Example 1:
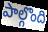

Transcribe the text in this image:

పాల్గొంది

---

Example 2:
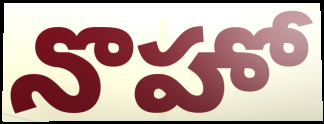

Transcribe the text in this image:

నొహో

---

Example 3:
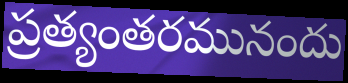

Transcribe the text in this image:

ప్రత్యంతరమునందు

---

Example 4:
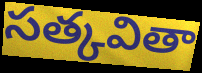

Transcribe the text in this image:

సత్కవితా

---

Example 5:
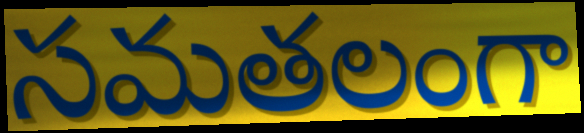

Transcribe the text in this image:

సమతలంగా